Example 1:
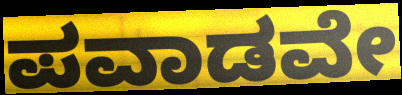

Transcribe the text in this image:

ಪವಾಡವೇ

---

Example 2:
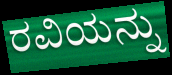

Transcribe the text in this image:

ರವಿಯನ್ನು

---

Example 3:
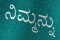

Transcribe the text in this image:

ನಿಮ್ಮನ್ನು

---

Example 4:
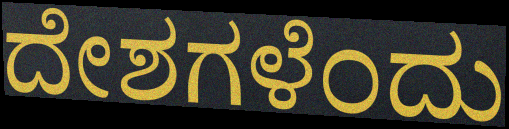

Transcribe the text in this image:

ದೇಶಗಳೆಂದು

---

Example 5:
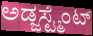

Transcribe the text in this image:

ಅಡ್ಜಸ್ಟ್ಮೆಂಟ್